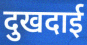
दुखदाई